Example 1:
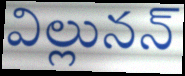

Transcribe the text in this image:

విల్లునన్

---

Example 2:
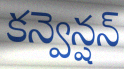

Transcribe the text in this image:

కన్వెన్షన్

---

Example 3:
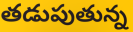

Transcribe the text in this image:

తడుపుతున్న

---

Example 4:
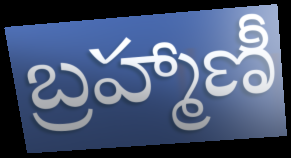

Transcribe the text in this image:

బ్రహ్మాణీ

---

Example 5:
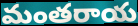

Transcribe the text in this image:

మంతరాయ